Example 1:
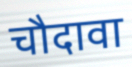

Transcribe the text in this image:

चौदावा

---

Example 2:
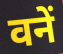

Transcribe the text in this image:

वनें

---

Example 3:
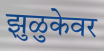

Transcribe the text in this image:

झुळुकेवर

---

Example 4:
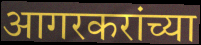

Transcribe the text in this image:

आगरकरांच्या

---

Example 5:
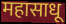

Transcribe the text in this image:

महासाधू